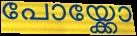
പോയ്ക്കോ